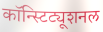
कॉन्स्टिट्यूशनल